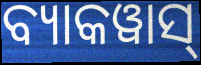
ବ୍ୟାକୱାସ୍